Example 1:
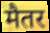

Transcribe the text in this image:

मैतर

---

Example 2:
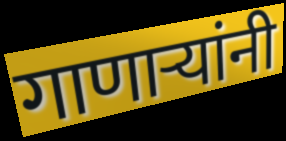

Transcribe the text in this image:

गाणाऱ्यांनी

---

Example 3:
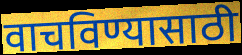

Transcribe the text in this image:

वाचविण्यासाठी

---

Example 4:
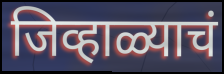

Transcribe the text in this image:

जिव्हाळ्याचं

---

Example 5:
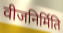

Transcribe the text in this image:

वीजनिर्मिति